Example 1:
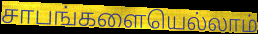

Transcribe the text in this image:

சாபங்களையெல்லாம்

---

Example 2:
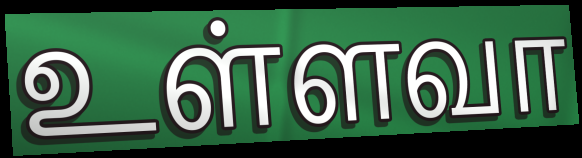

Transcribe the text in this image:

உள்ளவா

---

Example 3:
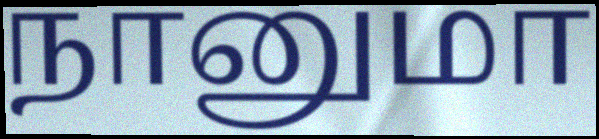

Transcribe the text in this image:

நானுமா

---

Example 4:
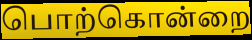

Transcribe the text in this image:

பொற்கொன்றை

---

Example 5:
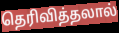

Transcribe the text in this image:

தெரிவித்தலால்